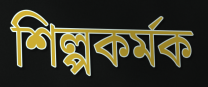
শিল্পকৰ্মক